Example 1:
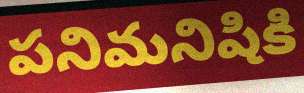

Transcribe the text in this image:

పనిమనిషికి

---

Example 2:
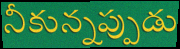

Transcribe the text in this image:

నీకున్నప్పుడు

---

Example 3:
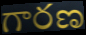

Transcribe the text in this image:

గారణ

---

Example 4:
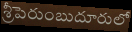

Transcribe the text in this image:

శ్రీపెరుంబుదూరులో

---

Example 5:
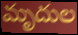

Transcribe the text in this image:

మృదుల